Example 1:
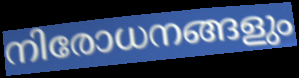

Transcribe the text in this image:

നിരോധനങ്ങളും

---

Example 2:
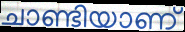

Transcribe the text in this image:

ചാണ്ടിയാണ്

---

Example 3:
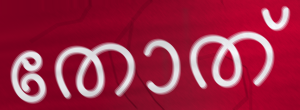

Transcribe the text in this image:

തോത്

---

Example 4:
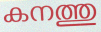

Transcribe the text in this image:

കനത്തു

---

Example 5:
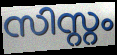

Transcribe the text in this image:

സിസ്റ്റം